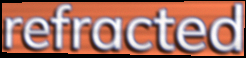
refracted